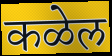
कळेल